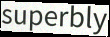
superbly